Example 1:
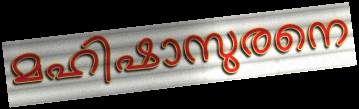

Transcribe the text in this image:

മഹിഷാസുരനെ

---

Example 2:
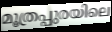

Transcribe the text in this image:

മൂത്രപ്പുരയിലെ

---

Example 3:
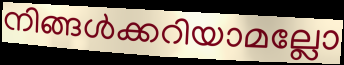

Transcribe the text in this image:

നിങ്ങൾക്കറിയാമല്ലോ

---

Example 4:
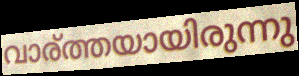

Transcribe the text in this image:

വാര്ത്തയായിരുന്നു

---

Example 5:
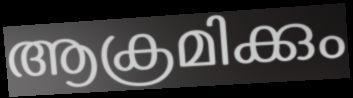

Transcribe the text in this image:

ആക്രമിക്കും